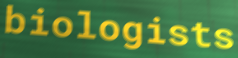
biologists